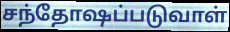
சந்தோஷப்படுவாள்